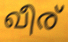
ഖീര്